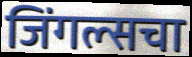
जिंगल्सचा